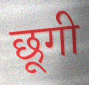
छूगी